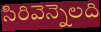
సిరివెన్నెలది